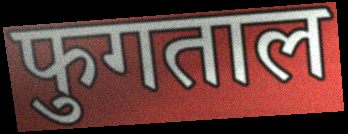
फुगताल